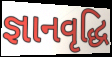
જ્ઞાનવૃદ્ધિ